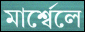
মাৰ্শ্বেলে